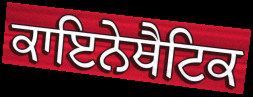
ਕਾਇਨੇਥੈਟਿਕ